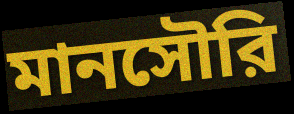
মানসৌরি